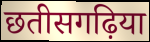
छतीसगढ़िया